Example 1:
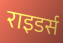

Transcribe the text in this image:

राइडर्स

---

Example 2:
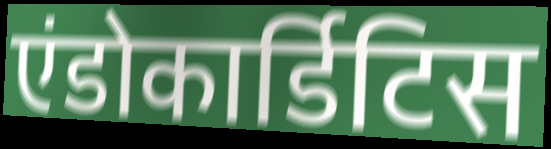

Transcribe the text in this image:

एंडोकार्डिटिस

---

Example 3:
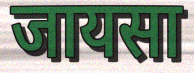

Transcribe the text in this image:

जायसा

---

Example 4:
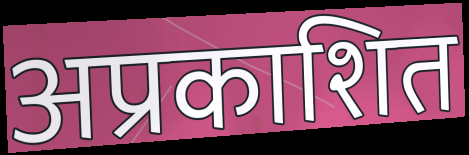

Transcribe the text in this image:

अप्रकाशित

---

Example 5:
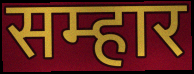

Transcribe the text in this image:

सम्हार